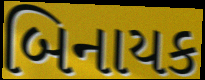
બિનાયક